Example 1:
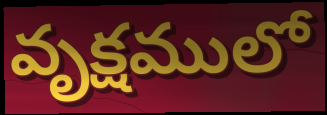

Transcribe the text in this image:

వృక్షములో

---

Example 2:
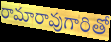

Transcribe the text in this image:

రామారావుగారితో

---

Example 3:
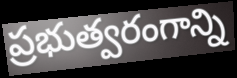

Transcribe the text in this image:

ప్రభుత్వరంగాన్ని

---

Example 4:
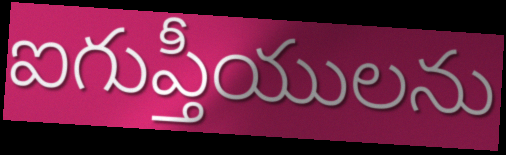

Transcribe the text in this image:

ఐగుప్తీయులను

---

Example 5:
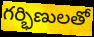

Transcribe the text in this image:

గర్భిణులతో